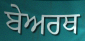
ਬੇਅਰਥ